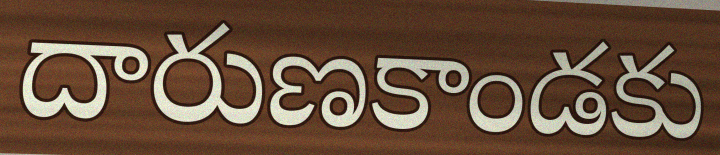
దారుణకాండకు